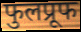
फुलप्रूफ